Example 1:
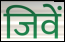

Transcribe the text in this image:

जिवें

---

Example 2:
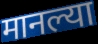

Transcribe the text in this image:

मानल्या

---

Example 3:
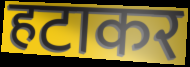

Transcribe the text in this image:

हटाकर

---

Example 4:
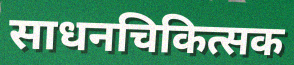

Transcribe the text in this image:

साधनचिकित्सक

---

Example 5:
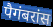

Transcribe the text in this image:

पैगंबरांस